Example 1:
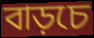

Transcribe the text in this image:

বাড়চে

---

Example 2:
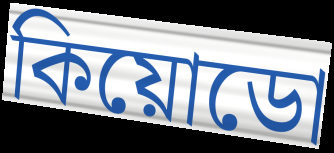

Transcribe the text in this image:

কিয়োডো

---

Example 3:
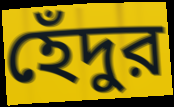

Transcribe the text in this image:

হেঁদুর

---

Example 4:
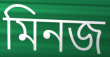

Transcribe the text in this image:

মিনজ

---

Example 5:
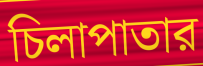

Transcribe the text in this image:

চিলাপাতার